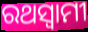
ରଥସ୍ୱାମୀ